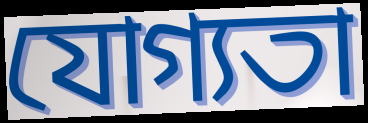
যোগ্যতা